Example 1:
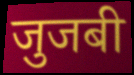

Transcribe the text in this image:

जुजबी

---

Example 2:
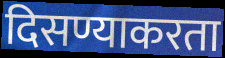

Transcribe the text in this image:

दिसण्याकरता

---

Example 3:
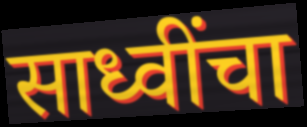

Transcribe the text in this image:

साध्वींचा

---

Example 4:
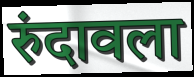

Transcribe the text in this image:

रुंदावला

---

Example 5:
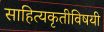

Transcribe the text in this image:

साहित्यकृतीविषयी